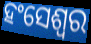
ହଂସେଶ୍ୱର